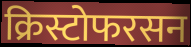
क्रिस्टोफरसन